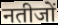
नतीजों